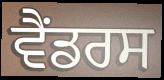
ਵੈਂਡਰਸ